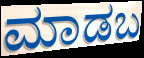
ಮಾಡಬ